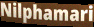
Nilphamari